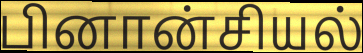
பினான்சியல்